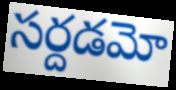
సర్దడమో